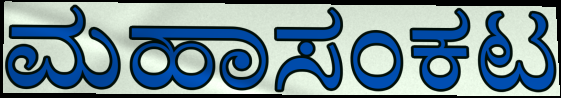
ಮಹಾಸಂಕಟ